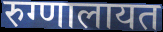
रुग्णालायत